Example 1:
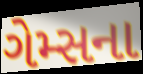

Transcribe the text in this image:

ગેમ્સના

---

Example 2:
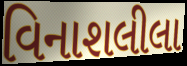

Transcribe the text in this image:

વિનાશલીલા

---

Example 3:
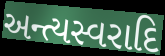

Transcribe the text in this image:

અન્ત્યસ્વરાદિ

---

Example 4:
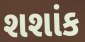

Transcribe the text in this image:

શશાંક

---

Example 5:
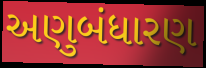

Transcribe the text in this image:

અણુબંધારણ